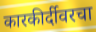
कारकीर्दीवरचा